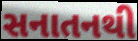
સનાતનથી